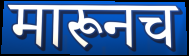
मारूनच